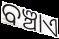
ବଞ୍ଚାଏ